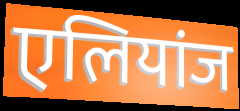
एलियांज